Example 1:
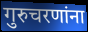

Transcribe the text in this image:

गुरुचरणांना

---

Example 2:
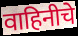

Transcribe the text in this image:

वाहिनीचे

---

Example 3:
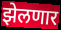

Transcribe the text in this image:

झेलणार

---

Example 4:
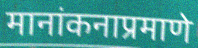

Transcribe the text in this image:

मानांकनाप्रमाणे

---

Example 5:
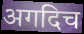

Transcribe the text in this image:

अगदिच